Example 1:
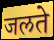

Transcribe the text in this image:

जलते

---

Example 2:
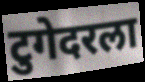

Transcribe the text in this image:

टुगेदरला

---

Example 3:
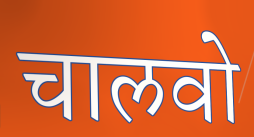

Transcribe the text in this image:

चालवो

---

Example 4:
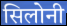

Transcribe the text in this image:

सिलोनी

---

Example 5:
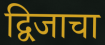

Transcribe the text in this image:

द्विजाचा